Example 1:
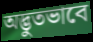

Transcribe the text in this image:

অদ্ভুতভাবে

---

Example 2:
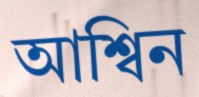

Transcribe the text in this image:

আশ্বিন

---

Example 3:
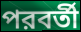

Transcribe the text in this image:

পরবর্তী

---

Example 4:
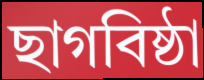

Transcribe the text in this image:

ছাগবিষ্ঠা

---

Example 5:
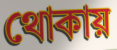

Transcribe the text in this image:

থোকায়